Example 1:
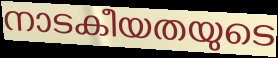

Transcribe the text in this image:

നാടകീയതയുടെ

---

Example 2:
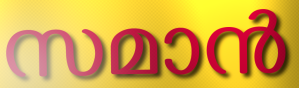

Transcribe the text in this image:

സമാൻ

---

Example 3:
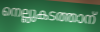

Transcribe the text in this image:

നെല്ലുകടത്താന്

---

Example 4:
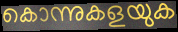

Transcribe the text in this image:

കൊന്നുകളയുക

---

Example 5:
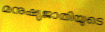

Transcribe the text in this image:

മനുഷ്യജാതിയുടെ